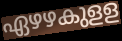
ഏഴഴകുളള